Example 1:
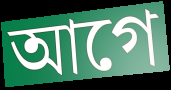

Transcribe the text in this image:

আগে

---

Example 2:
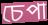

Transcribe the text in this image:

চেপা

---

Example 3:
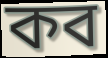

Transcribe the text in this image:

কব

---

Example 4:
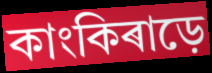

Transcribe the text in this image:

কাংকিৰাড়ে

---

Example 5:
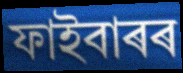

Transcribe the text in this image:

ফাইবাৰৰ